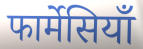
फार्मेसियाँ